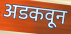
अडकवून